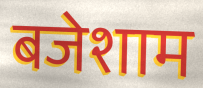
बजेशाम